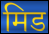
मिड